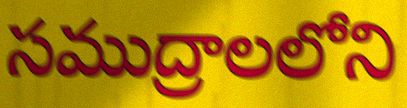
సముద్రాలలోని